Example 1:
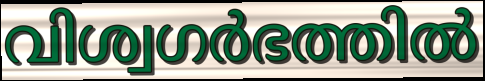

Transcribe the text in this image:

വിശ്വഗർഭത്തിൽ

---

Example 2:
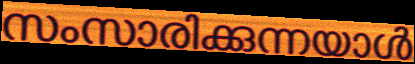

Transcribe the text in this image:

സംസാരിക്കുന്നയാൾ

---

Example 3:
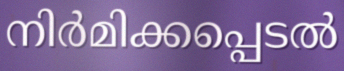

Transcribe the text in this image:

നിർമിക്കപ്പെടൽ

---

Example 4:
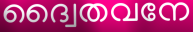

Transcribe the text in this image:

ദ്വൈതവനേ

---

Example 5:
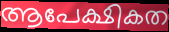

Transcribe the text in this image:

ആപേക്ഷികത